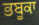
ਭਬੂਕਾ